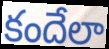
కందేలా